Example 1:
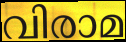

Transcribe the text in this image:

വിരാമ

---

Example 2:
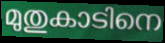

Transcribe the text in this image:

മുതുകാടിനെ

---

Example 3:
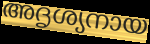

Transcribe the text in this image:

അദൃശ്യനായ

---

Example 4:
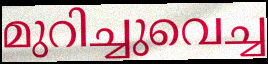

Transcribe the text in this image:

മുറിച്ചുവെച്ച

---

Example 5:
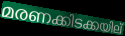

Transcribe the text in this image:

മരണക്കിടക്കയില്